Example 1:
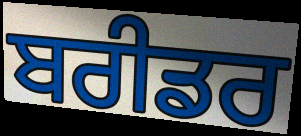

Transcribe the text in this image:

ਬਰੀਡਰ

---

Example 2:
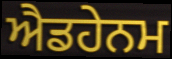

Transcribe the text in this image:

ਐਡਹੇਨਮ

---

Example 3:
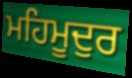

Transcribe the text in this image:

ਮਹਿਮੂਦੁਰ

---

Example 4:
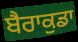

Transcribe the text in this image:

ਬੈਰਾਕੁਡਾ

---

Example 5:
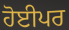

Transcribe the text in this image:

ਹੋਈਪਰ